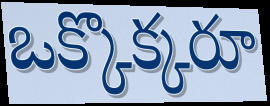
ఒక్కొక్కరూ